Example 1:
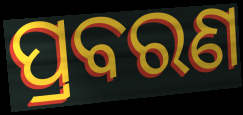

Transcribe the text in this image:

ପ୍ରବରଣ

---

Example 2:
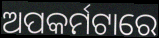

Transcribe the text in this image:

ଅପକର୍ମଟାରେ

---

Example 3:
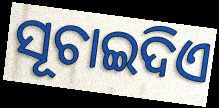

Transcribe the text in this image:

ସୂଚାଇଦିଏ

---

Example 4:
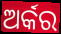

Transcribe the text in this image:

ଅର୍କର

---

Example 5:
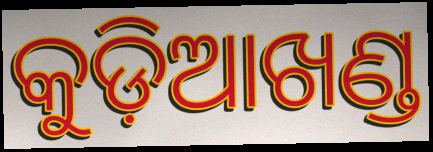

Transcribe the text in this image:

କୁଡ଼ିଆଖଣ୍ଡ